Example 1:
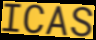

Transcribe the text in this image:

ICAS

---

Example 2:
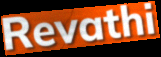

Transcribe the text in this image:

Revathi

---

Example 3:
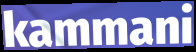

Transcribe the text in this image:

kammani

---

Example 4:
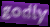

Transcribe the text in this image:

godly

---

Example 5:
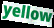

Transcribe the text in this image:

yellow